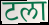
टला